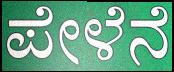
ಪೇಳೆನೆ